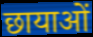
छायाओं